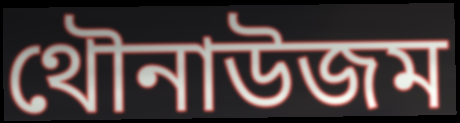
থৌনাউজম